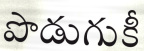
పొడుగుకీ